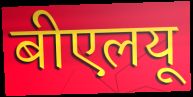
बीएलयू